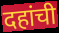
दहांची